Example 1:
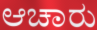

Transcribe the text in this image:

ಆಚಾರು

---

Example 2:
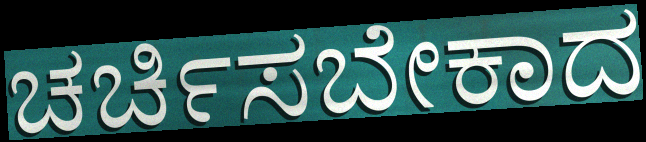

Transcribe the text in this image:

ಚರ್ಚಿಸಬೇಕಾದ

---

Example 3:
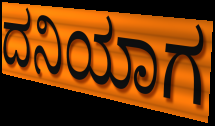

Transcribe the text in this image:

ದನಿಯಾಗ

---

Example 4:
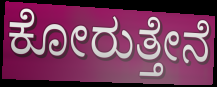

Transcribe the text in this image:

ಕೋರುತ್ತೇನೆ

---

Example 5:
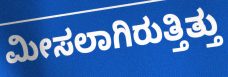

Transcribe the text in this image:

ಮೀಸಲಾಗಿರುತ್ತಿತ್ತು